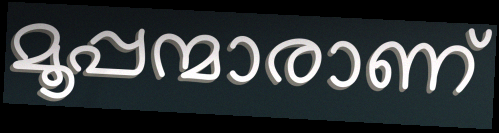
മൂപ്പന്മാരാണ്